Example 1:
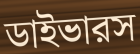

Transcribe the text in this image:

ডাইভারস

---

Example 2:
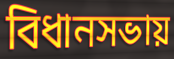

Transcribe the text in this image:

বিধানসভায়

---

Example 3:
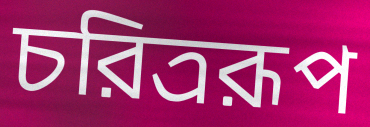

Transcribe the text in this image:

চরিত্ররূপ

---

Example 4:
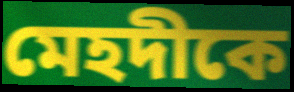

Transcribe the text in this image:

মেহদীকে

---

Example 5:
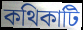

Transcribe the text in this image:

কথিকাটি